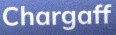
Chargaff